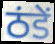
ठंडें